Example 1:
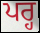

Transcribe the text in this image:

ਪਰ੍ਹ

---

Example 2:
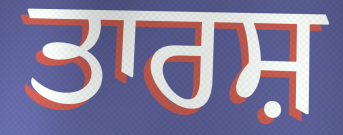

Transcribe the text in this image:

ਤਾਰਸ਼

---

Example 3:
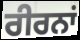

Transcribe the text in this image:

ਰੀਰਨਾਂ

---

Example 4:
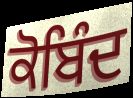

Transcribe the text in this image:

ਕੋਬਿੰਦ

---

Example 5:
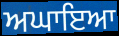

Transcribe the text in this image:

ਅਘਾਇਆ